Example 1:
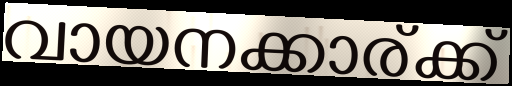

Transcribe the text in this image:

വായനക്കാര്ക്ക്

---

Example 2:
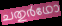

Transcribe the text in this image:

ചതുർഥോ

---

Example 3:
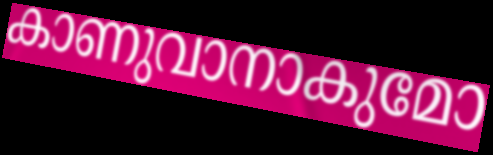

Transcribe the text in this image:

കാണുവാനാകുമോ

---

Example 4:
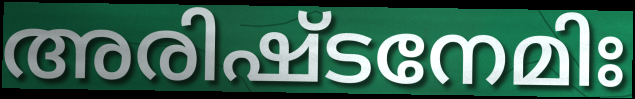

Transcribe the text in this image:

അരിഷ്ടനേമിഃ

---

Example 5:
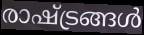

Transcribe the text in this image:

രാഷ്ട്രങ്ങൾ